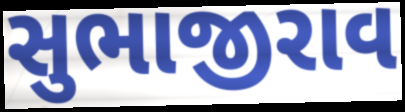
સુભાજીરાવ